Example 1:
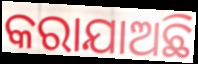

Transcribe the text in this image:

କରାଯାଅଛି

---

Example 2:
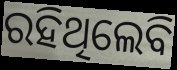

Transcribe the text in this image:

ରହିଥିଲେବି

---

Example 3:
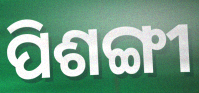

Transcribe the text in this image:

ପିଶଙ୍ଗୀ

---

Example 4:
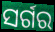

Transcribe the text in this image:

ସର୍ଗର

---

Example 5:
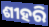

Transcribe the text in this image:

ଶୀହରି